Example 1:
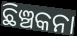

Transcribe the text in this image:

ଛିଞ୍ଚକନା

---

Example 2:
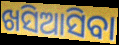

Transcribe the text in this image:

ଖସିଆସିବା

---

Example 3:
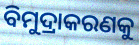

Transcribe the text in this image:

ବିମୁଦ୍ରାକରଣକୁ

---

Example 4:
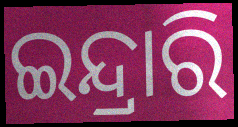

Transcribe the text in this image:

ଇନ୍ଦ୍ରାରି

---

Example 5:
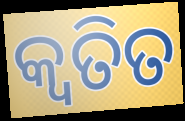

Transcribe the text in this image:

କ୍ୱତିତ